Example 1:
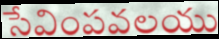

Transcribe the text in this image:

సేవింపవలయు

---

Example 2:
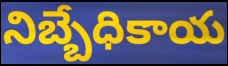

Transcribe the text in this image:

నిబ్బేధికాయ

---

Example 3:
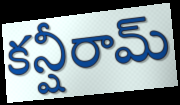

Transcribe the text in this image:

కన్షీరామ్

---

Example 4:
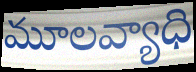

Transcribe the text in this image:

మూలవ్యాధి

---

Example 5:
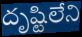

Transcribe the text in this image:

దృష్టిలేని